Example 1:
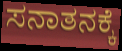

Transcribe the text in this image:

ಸನಾತನಕ್ಕೆ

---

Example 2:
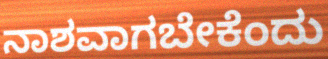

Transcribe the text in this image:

ನಾಶವಾಗಬೇಕೆಂದು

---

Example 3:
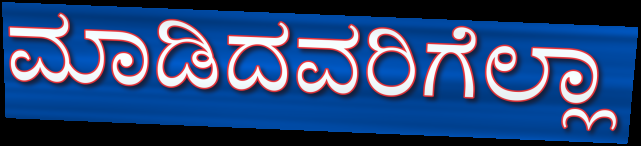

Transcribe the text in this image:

ಮಾಡಿದವರಿಗೆಲ್ಲಾ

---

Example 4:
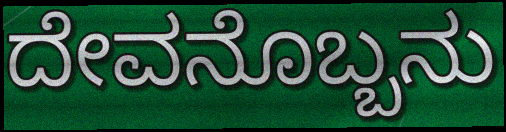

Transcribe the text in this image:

ದೇವನೊಬ್ಬನು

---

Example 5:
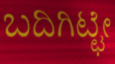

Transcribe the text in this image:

ಬದಿಗಿಟ್ಟೇ